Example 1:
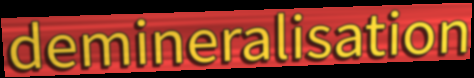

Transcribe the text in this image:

demineralisation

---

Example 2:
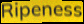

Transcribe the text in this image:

Ripeness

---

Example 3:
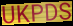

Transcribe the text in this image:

UKPDS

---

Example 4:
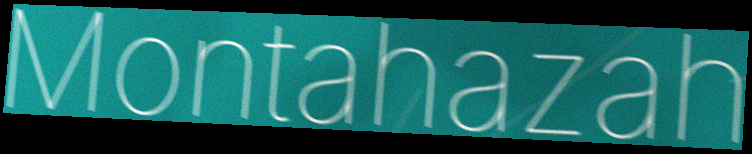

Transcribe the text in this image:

Montahazah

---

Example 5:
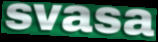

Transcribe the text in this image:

svasa